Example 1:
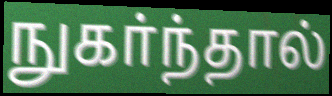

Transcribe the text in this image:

நுகர்ந்தால்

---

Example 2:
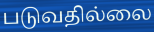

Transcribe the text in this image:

படுவதில்லை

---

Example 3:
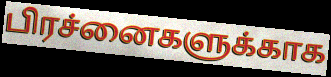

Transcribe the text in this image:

பிரச்னைகளுக்காக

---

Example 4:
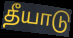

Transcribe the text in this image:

தீயாடு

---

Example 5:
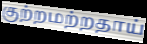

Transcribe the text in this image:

குற்றமற்றதாய்